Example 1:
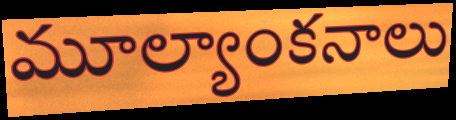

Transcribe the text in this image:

మూల్యాంకనాలు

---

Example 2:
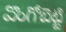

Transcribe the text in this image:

వొంగోబెట్టి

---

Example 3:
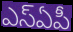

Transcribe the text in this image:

ఎస్ఏపీ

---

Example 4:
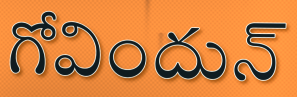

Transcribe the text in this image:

గోవిందున్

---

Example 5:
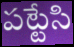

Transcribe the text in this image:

పట్టేసి